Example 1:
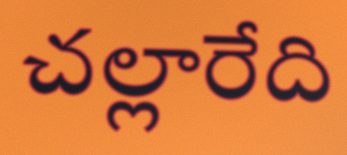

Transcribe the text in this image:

చల్లారేది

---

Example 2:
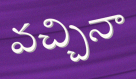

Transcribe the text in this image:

వచ్చినా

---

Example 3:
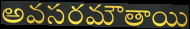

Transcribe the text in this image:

అవసరమౌతాయి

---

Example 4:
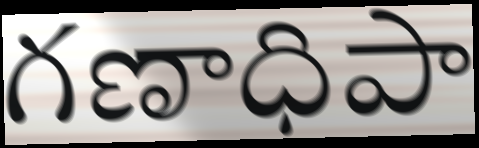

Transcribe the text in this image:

గణాధిపా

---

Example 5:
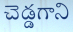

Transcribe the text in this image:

చెడ్డగాని